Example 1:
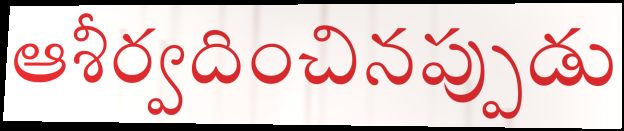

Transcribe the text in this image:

ఆశీర్వదించినప్పుడు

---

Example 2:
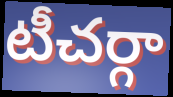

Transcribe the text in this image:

టీచర్గా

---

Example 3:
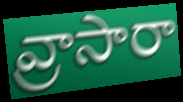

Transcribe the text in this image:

వ్రాసారా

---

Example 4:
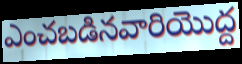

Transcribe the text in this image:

ఎంచబడినవారియొద్ద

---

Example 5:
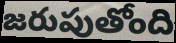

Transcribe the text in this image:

జరుపుతోంది